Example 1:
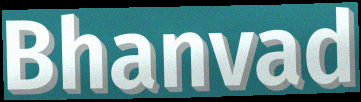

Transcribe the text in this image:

Bhanvad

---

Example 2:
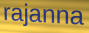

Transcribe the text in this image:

rajanna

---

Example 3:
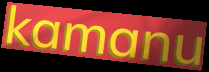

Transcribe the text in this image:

kamanu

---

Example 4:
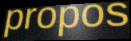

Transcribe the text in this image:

propos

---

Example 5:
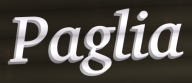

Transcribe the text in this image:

Paglia